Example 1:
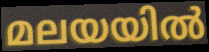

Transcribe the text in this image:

മലയയിൽ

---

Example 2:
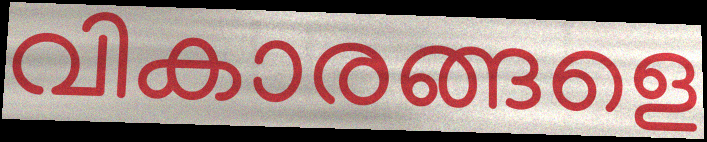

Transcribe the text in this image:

വികാരങ്ങളെ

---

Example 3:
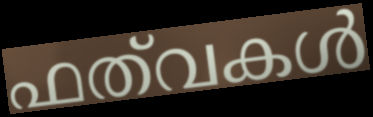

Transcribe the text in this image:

ഫത്‌വകൾ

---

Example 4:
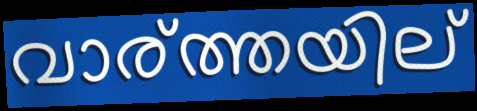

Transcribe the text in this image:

വാര്ത്തയില്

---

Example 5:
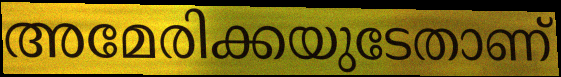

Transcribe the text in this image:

അമേരിക്കയുടേതാണ്